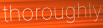
thoroughly